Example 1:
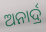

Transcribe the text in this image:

ଅନାର୍ଦ୍ର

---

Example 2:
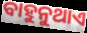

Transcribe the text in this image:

ବାହୁନୁଥାଏ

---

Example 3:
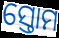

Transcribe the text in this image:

ସ୍ତୋମ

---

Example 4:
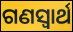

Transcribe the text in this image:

ଗଣସ୍ୱାର୍ଥ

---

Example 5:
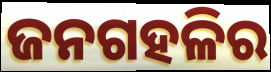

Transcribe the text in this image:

ଜନଗହଳିର